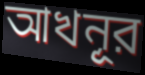
আখনূর